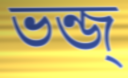
ভন্জ্